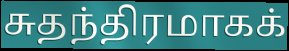
சுதந்திரமாகக்